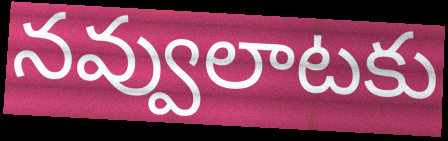
నవ్వులాటకు